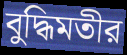
বুদ্ধিমতীর